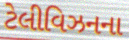
ટેલીવિઝનના